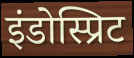
इंडोस्प्रिट